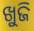
ଖୁଜି